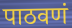
पाठवणं